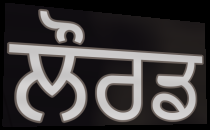
ਲੌਰਡ